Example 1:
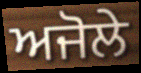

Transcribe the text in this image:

ਅਜੋਲੇ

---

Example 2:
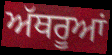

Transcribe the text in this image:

ਅੱਥਰੂਆਂ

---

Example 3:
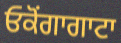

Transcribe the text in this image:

ਓਕੋਂਗਾਗਾਟਾ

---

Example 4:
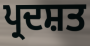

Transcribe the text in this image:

ਪ੍ਰਦਸ਼ਤ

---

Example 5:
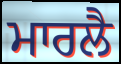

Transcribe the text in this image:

ਮਾਰਲੈ